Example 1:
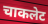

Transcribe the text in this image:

चाकलेट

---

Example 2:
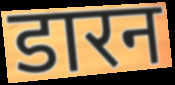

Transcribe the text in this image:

डारन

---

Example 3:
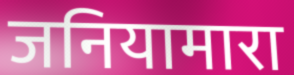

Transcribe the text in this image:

जनियामारा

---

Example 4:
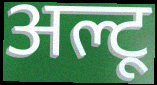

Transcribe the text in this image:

अल्टू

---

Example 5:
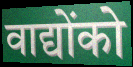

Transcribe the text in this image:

वाद्योंको